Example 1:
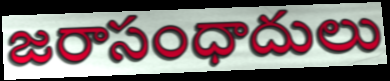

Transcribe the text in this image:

జరాసంధాదులు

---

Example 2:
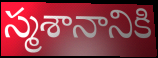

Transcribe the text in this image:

స్మశానానికి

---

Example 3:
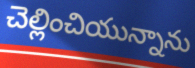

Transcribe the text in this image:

చెల్లించియున్నాను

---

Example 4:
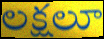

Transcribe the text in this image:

లక్షలూ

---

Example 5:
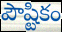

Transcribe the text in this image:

పౌష్టికం